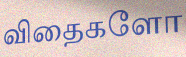
விதைகளோ